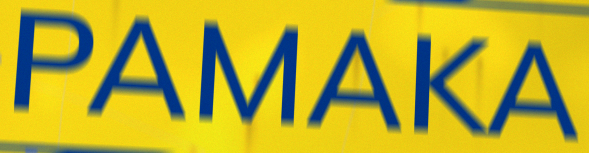
PAMAKA